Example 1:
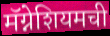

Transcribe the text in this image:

मॅग्नेशियमची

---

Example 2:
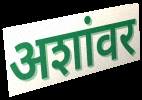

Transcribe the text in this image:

अशांवर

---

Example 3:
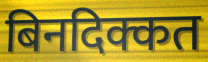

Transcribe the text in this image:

बिनदिक्कत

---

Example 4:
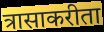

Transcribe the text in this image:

त्रासाकरीता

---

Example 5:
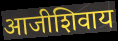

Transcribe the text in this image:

आजीशिवाय